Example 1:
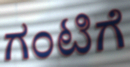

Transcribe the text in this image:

ಗಂಟಿಗೆ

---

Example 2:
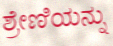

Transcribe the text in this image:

ಶ್ರೇಣಿಯನ್ನು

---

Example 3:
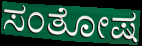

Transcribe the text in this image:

ಸಂತೋಷ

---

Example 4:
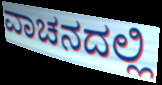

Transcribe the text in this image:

ವಾಚನದಲ್ಲಿ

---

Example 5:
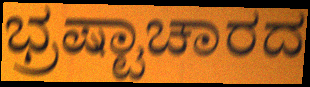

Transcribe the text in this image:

ಭ್ರಷ್ಟಾಚಾರದ